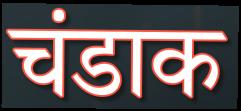
चंडाक